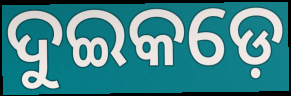
ଦୁଇକଡ଼େ